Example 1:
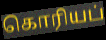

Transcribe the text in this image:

கொரியப்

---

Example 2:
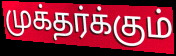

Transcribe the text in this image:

முக்தர்க்கும்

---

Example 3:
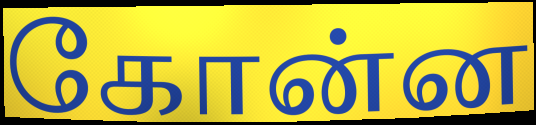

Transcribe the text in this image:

கோன்ன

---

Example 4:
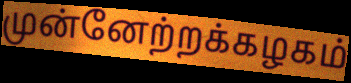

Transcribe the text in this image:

முன்னேற்றக்கழகம்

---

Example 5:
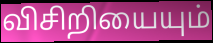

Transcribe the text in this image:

விசிறியையும்